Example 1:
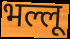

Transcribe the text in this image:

भल्लू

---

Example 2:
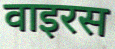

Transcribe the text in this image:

वाइरस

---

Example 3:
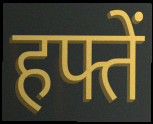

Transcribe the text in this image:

हफ्तें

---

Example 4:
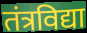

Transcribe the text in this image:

तंत्रविद्या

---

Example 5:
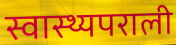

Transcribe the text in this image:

स्वास्थ्यपराली